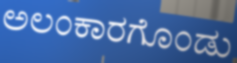
ಅಲಂಕಾರಗೊಂಡು